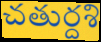
చతుర్దశి